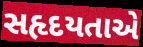
સહૃદયતાએ